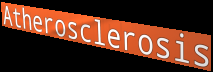
Atherosclerosis